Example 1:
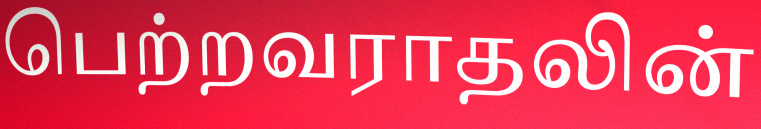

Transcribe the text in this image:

பெற்றவராதலின்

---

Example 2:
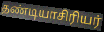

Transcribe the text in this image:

தண்டியாசிரியர்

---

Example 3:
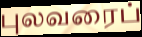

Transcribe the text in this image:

புலவரைப்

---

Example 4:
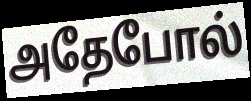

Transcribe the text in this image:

அதேபோல்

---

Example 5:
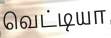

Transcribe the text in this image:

வெட்டியா